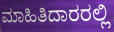
ಮಾಹಿತಿದಾರರಲ್ಲಿ